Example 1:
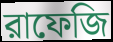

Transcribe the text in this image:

রাফেজি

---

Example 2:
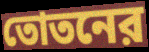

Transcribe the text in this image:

তোতনের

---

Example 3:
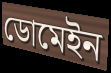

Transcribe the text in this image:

ডোমেইন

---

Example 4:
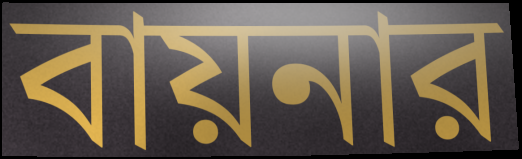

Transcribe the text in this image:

বায়নার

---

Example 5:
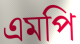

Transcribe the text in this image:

এমপি